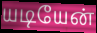
யடியேன்